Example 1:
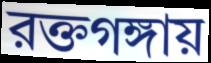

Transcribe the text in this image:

রক্তগঙ্গায়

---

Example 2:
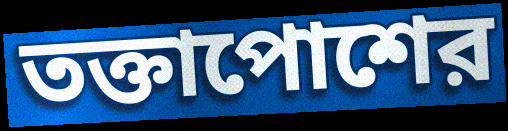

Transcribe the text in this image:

তক্তাপোশের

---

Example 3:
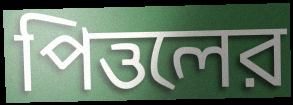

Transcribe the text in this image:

পিত্তলের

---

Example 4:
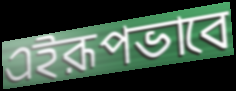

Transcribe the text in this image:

এইরূপভাবে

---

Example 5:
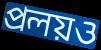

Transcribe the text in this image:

প্রলয়ও